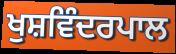
ਖੁਸ਼ਵਿੰਦਰਪਾਲ